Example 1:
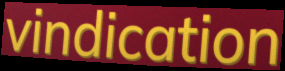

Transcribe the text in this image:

vindication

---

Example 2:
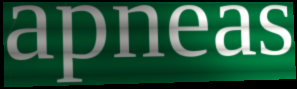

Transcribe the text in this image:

apneas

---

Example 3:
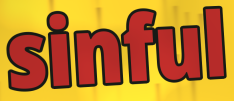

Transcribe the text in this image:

sinful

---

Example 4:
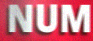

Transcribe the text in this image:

NUM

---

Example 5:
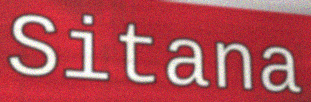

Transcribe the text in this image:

Sitana